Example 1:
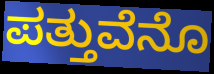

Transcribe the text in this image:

ಪತ್ತುವೆನೊ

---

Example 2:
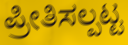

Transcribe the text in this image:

ಪ್ರೀತಿಸಲ್ಪಟ್ಟ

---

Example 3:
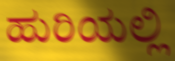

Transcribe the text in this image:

ಹುರಿಯಲ್ಲಿ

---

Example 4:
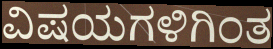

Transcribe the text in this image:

ವಿಷಯಗಳಿಗಿಂತ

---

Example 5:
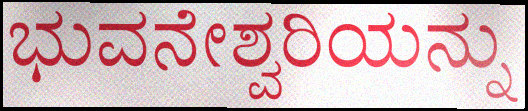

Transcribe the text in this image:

ಭುವನೇಶ್ವರಿಯನ್ನು